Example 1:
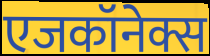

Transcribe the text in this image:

एजकॉनेक्स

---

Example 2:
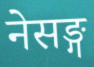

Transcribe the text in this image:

नेसङ्ग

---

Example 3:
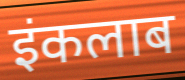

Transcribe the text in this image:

इंकलाब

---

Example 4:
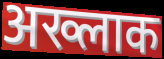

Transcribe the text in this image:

अख्लाक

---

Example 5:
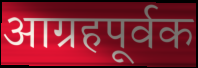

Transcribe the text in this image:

आग्रहपूर्वक